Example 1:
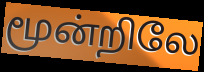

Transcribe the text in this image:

மூன்றிலே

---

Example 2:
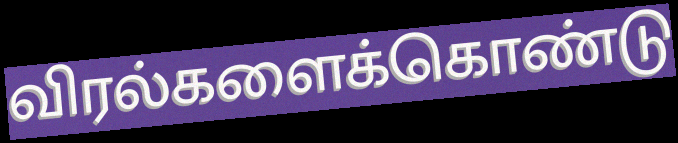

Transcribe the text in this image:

விரல்களைக்கொண்டு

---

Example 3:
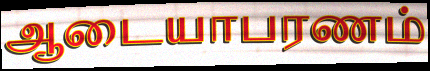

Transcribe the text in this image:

ஆடையாபரணம்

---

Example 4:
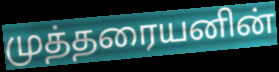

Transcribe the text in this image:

முத்தரையனின்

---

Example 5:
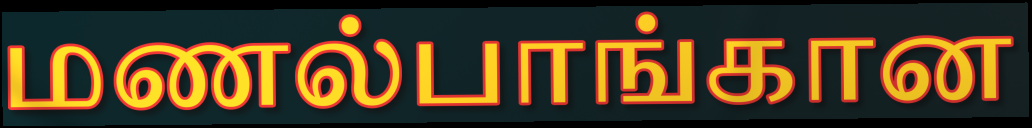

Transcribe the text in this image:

மணல்பாங்கான